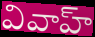
వివాహ్